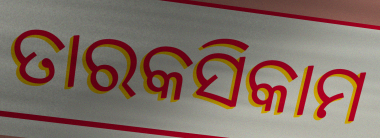
ତାରକସିକାମ